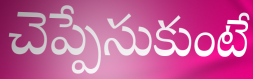
చెప్పేసుకుంటే